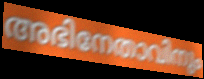
അഭിനേതാവിനും